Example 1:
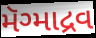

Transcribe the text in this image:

મૅગ્માદ્રવ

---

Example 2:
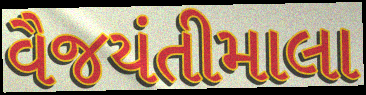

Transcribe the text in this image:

વૈજયંતીમાલા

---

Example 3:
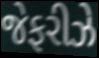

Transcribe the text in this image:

જેફરીઝે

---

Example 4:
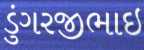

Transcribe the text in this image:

ડુંગરજીભાઇ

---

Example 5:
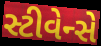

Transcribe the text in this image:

સ્ટીવેન્સે